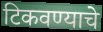
टिकवण्याचे